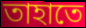
তাহাতে